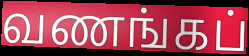
வணங்கப்